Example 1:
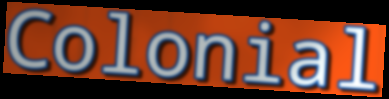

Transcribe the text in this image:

Colonial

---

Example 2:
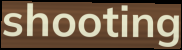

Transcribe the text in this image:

shooting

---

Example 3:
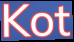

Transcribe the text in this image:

Kot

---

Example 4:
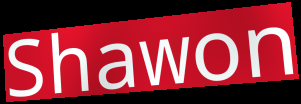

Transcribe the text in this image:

Shawon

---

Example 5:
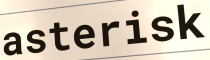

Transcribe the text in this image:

asterisk